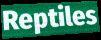
Reptiles